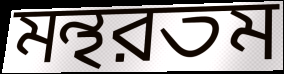
মন্থরতম